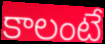
కాలంటే